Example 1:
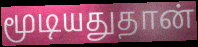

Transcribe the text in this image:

மூடியதுதான்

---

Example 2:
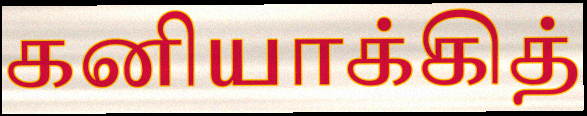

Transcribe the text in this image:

கனியாக்கித்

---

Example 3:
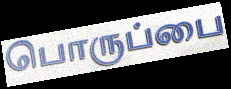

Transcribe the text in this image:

பொருப்பை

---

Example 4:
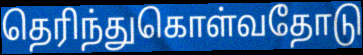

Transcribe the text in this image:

தெரிந்துகொள்வதோடு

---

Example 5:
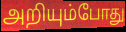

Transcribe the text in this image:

அறியும்போது